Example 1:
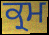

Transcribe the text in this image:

ਕ੍ਰਮ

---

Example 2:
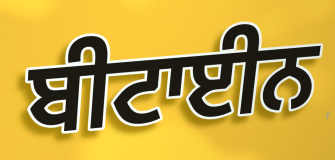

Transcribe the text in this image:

ਬੀਟਾਈਨ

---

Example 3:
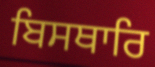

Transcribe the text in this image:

ਬਿਸਥਾਰਿ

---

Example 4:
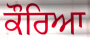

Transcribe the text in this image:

ਕੌਰਿਆ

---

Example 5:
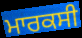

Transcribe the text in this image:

ਮਾਰਕਸੀ